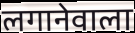
लगानेवाला